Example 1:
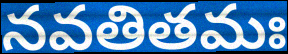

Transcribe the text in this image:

నవతితమః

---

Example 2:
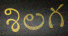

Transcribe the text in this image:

శిలగ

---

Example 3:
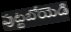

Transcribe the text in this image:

పుట్టబోయెడి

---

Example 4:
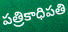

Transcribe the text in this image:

పత్రికాధిపతి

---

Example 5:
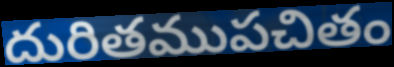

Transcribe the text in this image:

దురితముపచితం